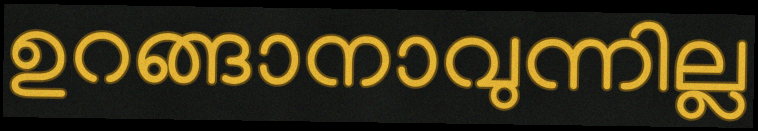
ഉറങ്ങാനാവുന്നില്ല